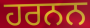
ਹਰਨਨ